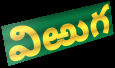
విఱుగ